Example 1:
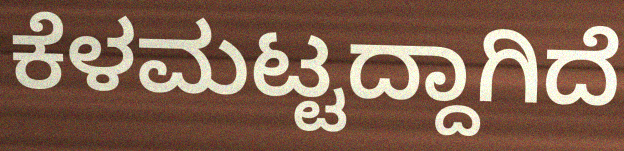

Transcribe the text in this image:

ಕೆಳಮಟ್ಟದ್ದಾಗಿದೆ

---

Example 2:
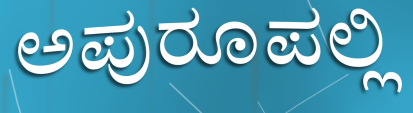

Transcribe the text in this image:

ಅಪುರೂಪಲ್ಲಿ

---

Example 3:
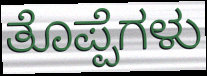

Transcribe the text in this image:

ತೊಪ್ಪೆಗಳು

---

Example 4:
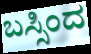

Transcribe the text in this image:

ಬಸ್ಸಿಂದ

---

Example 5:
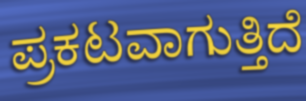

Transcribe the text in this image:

ಪ್ರಕಟವಾಗುತ್ತಿದೆ